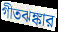
গীতঝঙ্কার